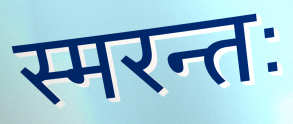
स्मरन्तः